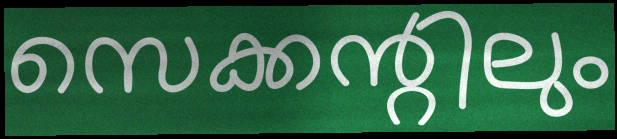
സെക്കന്റിലും